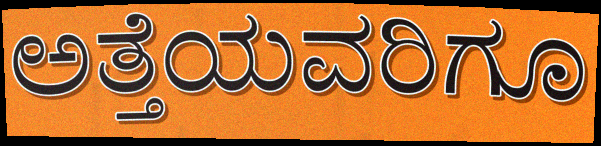
ಅತ್ತೆಯವರಿಗೂ